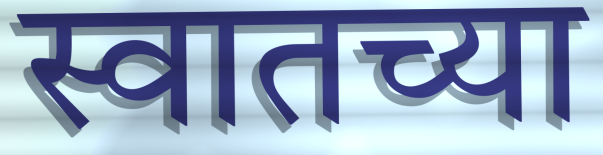
स्वातच्या